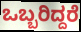
ಒಬ್ಬರಿದ್ದರೆ